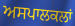
ਅਸਪਾਲਕਲਾਂ